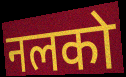
नलको